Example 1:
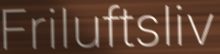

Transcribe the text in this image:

Friluftsliv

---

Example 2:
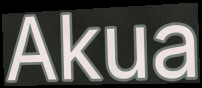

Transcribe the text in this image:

Akua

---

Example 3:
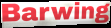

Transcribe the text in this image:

Barwing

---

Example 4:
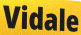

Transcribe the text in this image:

Vidale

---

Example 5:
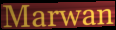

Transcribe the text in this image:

Marwan